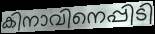
കിനാവിനെപ്പിടി